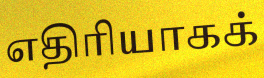
எதிரியாகக்